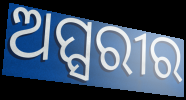
ଅପ୍ସରୀର